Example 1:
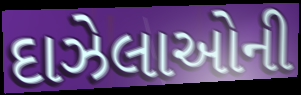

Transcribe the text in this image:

દાઝેલાઓની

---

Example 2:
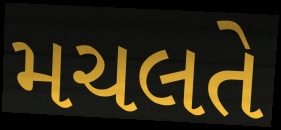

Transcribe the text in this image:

મચલતે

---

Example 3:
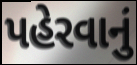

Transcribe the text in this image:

પહેરવાનું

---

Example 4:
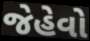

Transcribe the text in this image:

જેહેવો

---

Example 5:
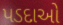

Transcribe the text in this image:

પડદાઓ